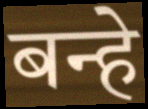
बन्हे